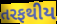
તરફથીય